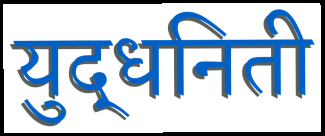
युद्धनिती